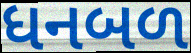
ધનબળ